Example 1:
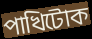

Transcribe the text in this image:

পাখিটোক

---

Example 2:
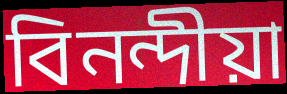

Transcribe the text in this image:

বিনন্দীয়া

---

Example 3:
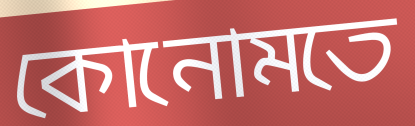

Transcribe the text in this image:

কোনোমতে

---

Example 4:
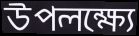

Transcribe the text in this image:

উপলক্ষ্যে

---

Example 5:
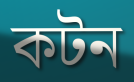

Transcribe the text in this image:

কটন